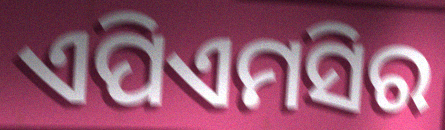
ଏପିଏମସିର